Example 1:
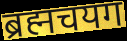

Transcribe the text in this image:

ब्रह्मचयग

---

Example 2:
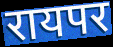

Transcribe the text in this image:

रायपर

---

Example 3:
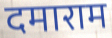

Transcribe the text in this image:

दमाराम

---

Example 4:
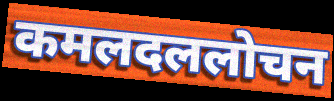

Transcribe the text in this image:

कमलदललोचन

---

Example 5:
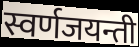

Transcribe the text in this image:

स्वर्णजयन्ती